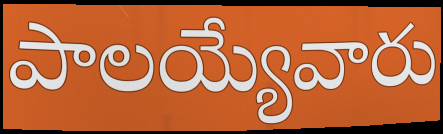
పాలయ్యేవారు